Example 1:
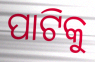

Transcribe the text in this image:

ପାଟିକୁ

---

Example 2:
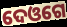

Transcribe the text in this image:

ଦେଓଗେ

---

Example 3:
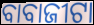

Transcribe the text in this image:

ବାବାଜୀଟା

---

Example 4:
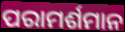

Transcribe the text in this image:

ପରାମର୍ଶମାନ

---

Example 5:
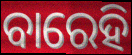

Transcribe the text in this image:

ବାରେହି